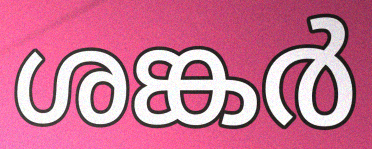
ശങ്കർ